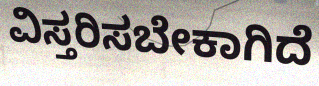
ವಿಸ್ತರಿಸಬೇಕಾಗಿದೆ